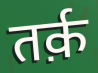
तर्क़